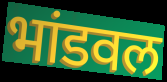
भांडवल